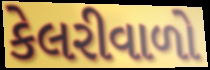
કેલરીવાળો